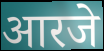
आरजे